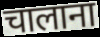
चालाना